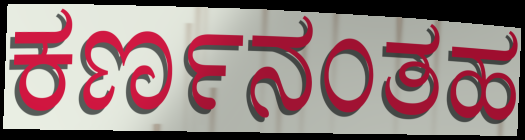
ಕರ್ಣನಂತಹ